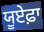
ਯੂਏਫ਼ਾ